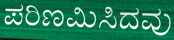
ಪರಿಣಮಿಸಿದವು